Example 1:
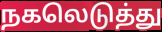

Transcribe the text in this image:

நகலெடுத்து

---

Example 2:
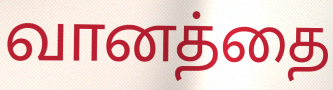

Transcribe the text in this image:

வானத்தை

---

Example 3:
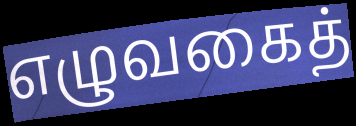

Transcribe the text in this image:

எழுவகைத்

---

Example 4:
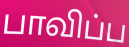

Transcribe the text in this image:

பாவிப்ப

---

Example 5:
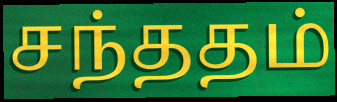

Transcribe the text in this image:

சந்ததம்